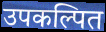
उपकल्पित